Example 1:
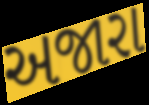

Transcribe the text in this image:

અજારા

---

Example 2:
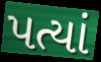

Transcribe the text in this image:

પત્યાં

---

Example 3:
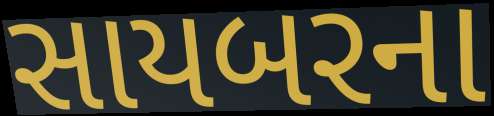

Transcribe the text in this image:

સાયબરના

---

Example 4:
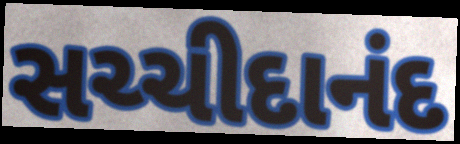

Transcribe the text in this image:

સચ્ચીદાનંદ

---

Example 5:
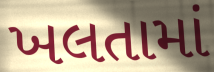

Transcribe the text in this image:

ખલતામાં